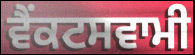
ਵੈਂਕਟਸਵਾਮੀ